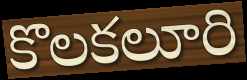
కొలకలూరి